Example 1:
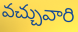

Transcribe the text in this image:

వచ్చువారి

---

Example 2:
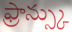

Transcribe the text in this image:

ఫ్రాన్స్కు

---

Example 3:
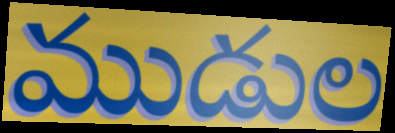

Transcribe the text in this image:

ముడుల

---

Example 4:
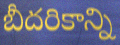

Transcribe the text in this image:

బీదరికాన్ని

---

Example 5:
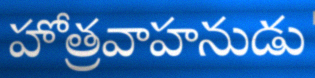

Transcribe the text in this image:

హోత్రవాహనుడు